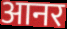
आनर